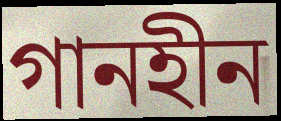
গানহীন